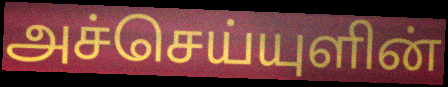
அச்செய்யுளின்